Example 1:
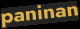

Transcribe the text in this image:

paninan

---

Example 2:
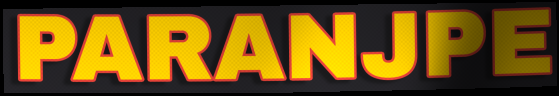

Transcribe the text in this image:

PARANJPE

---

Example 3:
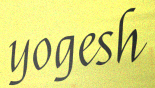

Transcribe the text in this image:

yogesh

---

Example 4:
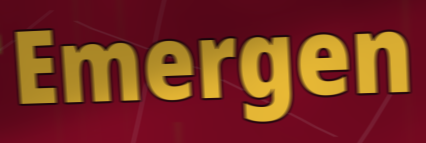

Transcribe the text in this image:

Emergen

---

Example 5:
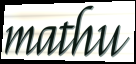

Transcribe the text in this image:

mathu